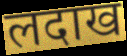
लदाख